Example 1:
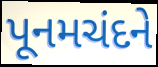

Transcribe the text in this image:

પૂનમચંદને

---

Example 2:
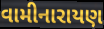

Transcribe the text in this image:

વામીનારાયણ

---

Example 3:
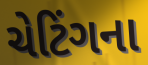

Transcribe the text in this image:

ચેટિંગના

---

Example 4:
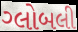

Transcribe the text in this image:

ગ્લોબલી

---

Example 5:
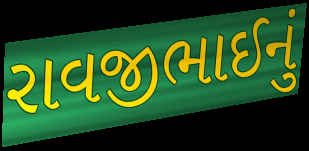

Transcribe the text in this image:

રાવજીભાઈનું